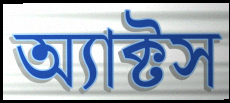
অ্যাক্টস